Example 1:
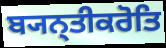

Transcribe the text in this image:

ਬ੍ਯਨ੍ਤੀਕਰੋਤਿ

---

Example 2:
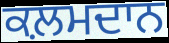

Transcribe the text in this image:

ਕ਼ਲਮਦਾਨ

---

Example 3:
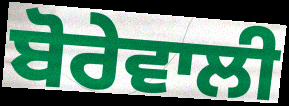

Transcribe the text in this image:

ਬੋਰੇਵਾਲੀ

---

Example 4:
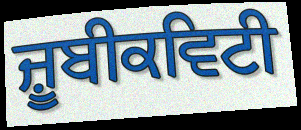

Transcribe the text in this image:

ਜ਼ੂਬੀਕਵਿਟੀ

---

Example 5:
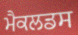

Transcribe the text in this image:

ਮੈਕਲਡਸ